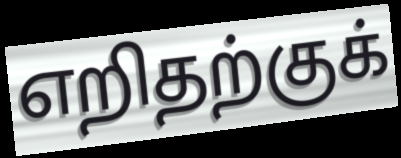
எறிதற்குக்